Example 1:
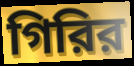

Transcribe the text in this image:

গিরির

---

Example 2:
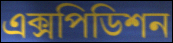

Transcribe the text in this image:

এক্সপিডিশন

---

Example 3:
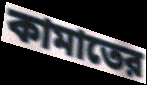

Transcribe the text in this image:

কামাতের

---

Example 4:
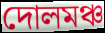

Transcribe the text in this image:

দোলমঞ্চ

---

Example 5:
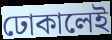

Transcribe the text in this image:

ঢোকালেই